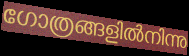
ഗോത്രങ്ങളിൽനിന്നു